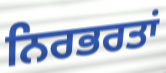
ਨਿਰਭਰਤਾਂ